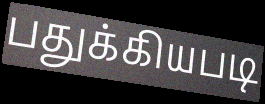
பதுக்கியபடி